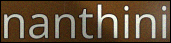
nanthini